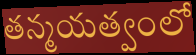
తన్మయత్వంలో